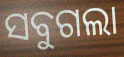
ସବୁଗଲା